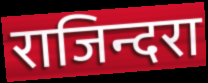
राजिन्दरा